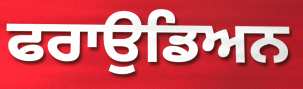
ਫਰਾਉਡਿਅਨ